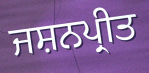
ਜਸ਼ਨਪ੍ਰੀਤ